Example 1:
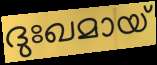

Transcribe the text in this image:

ദുഃഖമായ്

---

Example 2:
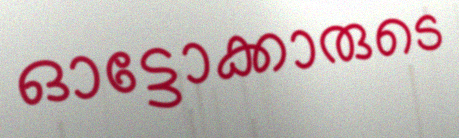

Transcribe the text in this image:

ഓട്ടോക്കാരുടെ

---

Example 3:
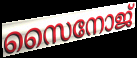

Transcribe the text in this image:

സൈനോജ്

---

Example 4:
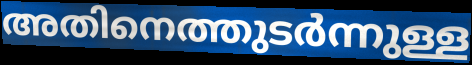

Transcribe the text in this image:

അതിനെത്തുടർന്നുള്ള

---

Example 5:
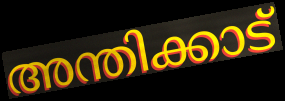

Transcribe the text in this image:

അന്തിക്കാട്